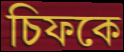
চিফকে